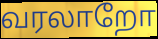
வரலாறோ